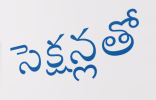
సెక్షన్లతో